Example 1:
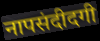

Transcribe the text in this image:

नापसंदीदगी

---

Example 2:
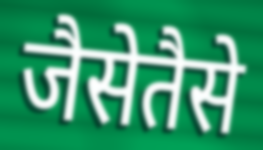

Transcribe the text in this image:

जैसेतैसे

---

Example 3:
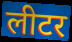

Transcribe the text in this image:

लीटर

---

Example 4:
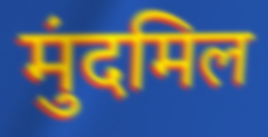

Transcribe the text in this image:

मुंदमिल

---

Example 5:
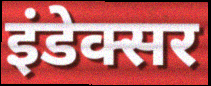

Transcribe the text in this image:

इंडेक्सर